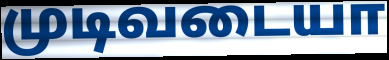
முடிவடையா